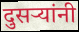
दुसर्‍यांनी